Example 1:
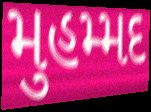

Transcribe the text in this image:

મુહમ્મદ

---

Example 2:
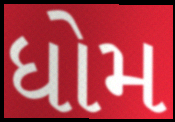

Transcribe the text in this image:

ધોમ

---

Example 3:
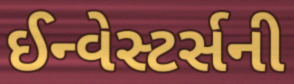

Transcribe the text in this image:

ઈન્વેસ્ટર્સની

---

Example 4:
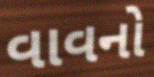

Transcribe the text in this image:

વાવનો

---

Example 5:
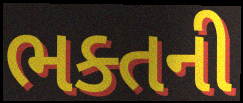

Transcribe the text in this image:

ભક્તની